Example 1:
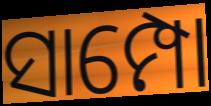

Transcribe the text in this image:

ସାମ୍ପୋ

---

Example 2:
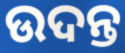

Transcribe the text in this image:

ଉଦନ୍ତ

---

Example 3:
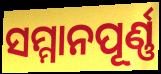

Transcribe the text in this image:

ସମ୍ମାନପୂର୍ଣ୍ଣ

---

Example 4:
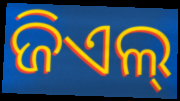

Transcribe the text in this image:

ଜିଏଲ୍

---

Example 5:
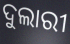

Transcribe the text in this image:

ଦୁଲାରୀ